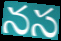
నస